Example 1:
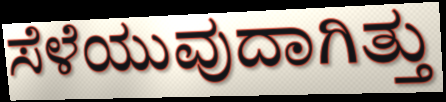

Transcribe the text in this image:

ಸೆಳೆಯುವುದಾಗಿತ್ತು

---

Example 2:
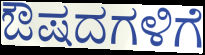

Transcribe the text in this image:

ಔಷದಗಳಿಗೆ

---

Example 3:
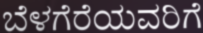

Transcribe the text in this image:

ಬೆಳಗೆರೆಯವರಿಗೆ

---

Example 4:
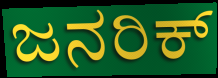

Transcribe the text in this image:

ಜನರಿಕ್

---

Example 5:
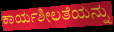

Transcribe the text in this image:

ಕಾರ್ಯಶೀಲತೆಯನ್ನು